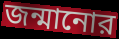
জন্মানোর